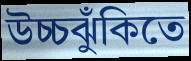
উচ্চঝুঁকিতে